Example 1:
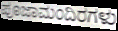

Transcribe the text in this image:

ಪೂಜಾಮಂದಿರಗಳು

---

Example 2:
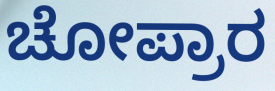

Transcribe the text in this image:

ಚೋಪ್ರಾರ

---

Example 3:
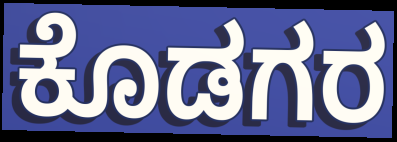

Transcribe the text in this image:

ಕೊಡಗರ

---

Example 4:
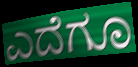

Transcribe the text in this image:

ಎದೆಗೂ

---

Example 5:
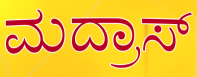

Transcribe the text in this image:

ಮದ್ರಾಸ್